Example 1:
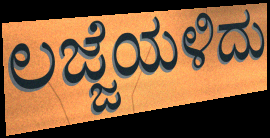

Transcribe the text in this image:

ಲಜ್ಜೆಯಳಿದು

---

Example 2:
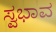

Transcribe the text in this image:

ಸ್ವಭಾವ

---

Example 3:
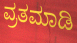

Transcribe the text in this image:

ವ್ರತಮಾಡಿ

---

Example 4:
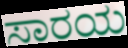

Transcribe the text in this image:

ಸಾರಯ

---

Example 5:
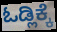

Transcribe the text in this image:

ಓಡ್ಲಿಕ್ಕೆ